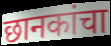
छानकांचा